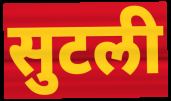
सुटली